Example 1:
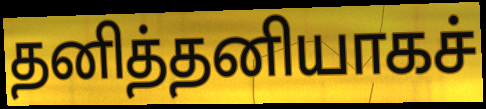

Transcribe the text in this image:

தனித்தனியாகச்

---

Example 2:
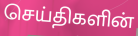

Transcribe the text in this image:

செய்திகளின்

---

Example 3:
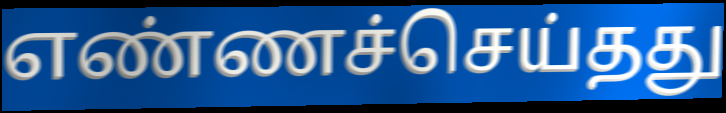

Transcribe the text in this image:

எண்ணச்செய்தது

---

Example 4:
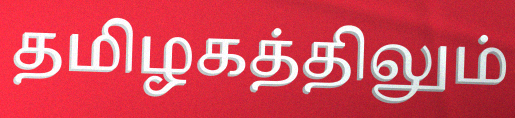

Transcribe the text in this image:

தமிழகத்திலும்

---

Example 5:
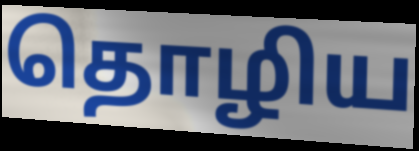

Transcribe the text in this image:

தொழிய